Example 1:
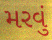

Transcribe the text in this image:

મરવું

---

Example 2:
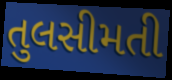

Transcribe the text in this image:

તુલસીમતી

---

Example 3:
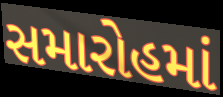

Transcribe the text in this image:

સમારોહમાં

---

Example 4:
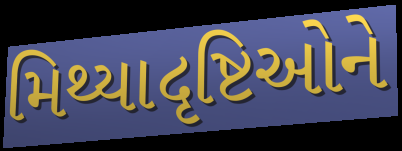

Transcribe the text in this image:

મિથ્યાદૃષ્ટિઓને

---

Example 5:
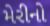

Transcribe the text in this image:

મેરીનો